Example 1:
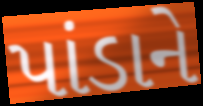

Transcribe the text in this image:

પાંડાને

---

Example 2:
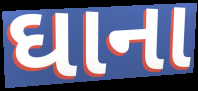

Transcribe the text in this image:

ઘાના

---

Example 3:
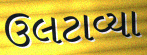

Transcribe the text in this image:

ઉલટાવ્યા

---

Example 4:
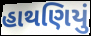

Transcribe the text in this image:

હાથણિયું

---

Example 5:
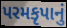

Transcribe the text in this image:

પરમકૃપાનું